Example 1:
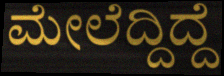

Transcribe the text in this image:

ಮೇಲೆದ್ದಿದ್ದೆ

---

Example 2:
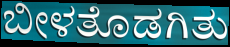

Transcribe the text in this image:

ಬೀಳತೊಡಗಿತು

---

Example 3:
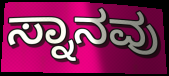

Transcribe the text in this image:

ಸ್ನಾನವು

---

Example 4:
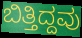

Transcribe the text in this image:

ಬಿತ್ತಿದ್ದವು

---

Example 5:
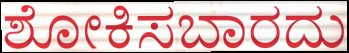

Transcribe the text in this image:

ಶೋಕಿಸಬಾರದು